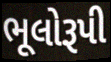
ભૂલોરૂપી